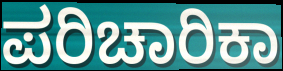
ಪರಿಚಾರಿಕಾ